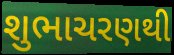
શુભાચરણથી